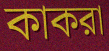
কাকরা